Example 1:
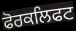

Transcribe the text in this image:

ਫੋਰਕਲਿਫਟ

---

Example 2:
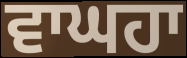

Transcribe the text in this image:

ਵਾਘਹਾ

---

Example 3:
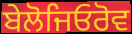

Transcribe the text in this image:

ਬੇਲੋਜਿਓਰੋਵ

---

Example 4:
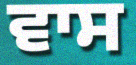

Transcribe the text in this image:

ਵਾਸ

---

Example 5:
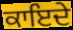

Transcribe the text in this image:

ਕਾਇਦੇ